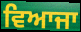
ਵਿਆਜਾ